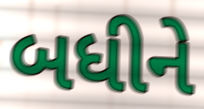
બધીને